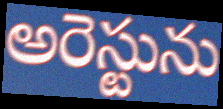
అరెస్టును